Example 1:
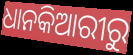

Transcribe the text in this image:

ଧାନକିଆରୀରୁ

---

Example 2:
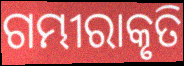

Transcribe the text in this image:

ଗମ୍ଭୀରାକୃତି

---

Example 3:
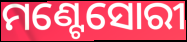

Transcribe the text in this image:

ମଣ୍ଟେସୋରୀ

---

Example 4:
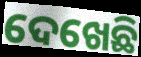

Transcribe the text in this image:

ଦେଖେଛି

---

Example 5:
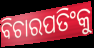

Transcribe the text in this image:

ବିଚାରପତିଂକୁ